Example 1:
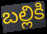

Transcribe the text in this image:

బల్లికి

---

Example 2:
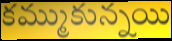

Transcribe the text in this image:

కమ్ముకున్నయి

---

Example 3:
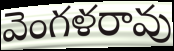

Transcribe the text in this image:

వెంగళరావు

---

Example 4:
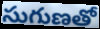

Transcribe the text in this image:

సుగుణతో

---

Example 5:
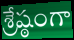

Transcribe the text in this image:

శ్రేష్ఠంగా